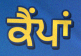
ਕੈੰਪਾਂ